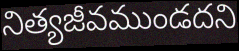
నిత్యజీవముండదని